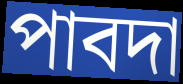
পাবদা